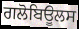
ਗਲੋਬਿਊਲਸ